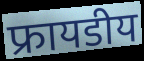
फ्रायडीय